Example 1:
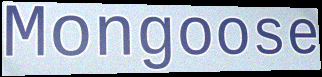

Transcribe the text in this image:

Mongoose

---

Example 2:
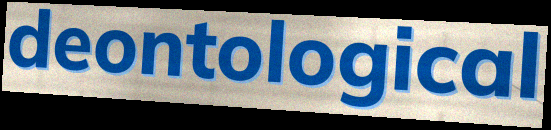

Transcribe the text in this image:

deontological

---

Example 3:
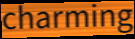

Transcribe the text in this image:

charming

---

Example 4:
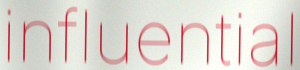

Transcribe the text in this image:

influential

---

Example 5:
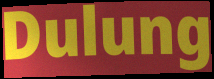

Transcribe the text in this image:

Dulung